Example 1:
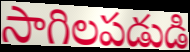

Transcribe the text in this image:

సాగిలపడుడి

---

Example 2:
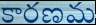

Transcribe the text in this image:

కారణమ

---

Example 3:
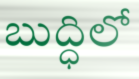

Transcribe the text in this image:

బుద్ధిలో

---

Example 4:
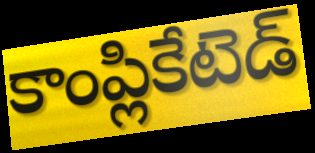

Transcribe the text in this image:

కాంప్లికేటెడ్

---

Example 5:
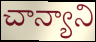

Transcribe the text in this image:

చాన్యాని